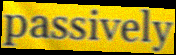
passively